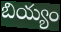
బియ్యం